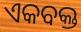
ଏକବକ୍ତ